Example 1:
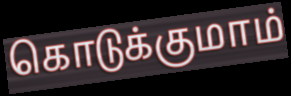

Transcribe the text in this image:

கொடுக்குமாம்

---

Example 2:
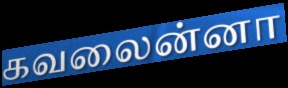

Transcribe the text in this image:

கவலைன்னா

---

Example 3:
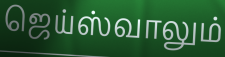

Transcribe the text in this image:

ஜெய்ஸ்வாலும்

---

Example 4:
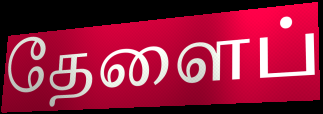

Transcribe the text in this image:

தேளைப்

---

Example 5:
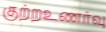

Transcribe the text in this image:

குற்றஉணர்வு